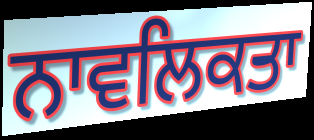
ਨਾਵਲਿਕਤਾ